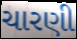
ચારણી